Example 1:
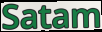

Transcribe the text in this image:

Satam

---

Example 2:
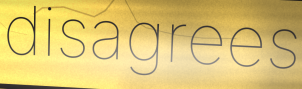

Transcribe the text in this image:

disagrees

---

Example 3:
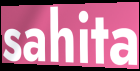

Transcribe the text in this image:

sahita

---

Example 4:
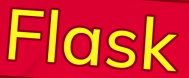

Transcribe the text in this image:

Flask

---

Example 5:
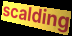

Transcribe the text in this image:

scalding